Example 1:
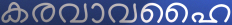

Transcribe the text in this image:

കരവാവഹൈ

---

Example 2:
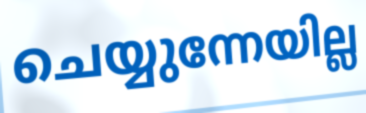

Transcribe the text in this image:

ചെയ്യുന്നേയില്ല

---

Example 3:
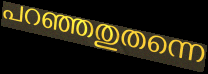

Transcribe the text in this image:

പറഞ്ഞതുതന്നെ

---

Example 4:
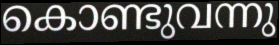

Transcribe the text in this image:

കൊണ്ടുവന്നു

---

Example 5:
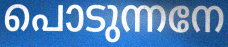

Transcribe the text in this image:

പൊടുന്നനേ